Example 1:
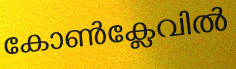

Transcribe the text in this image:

കോൺക്ലേവിൽ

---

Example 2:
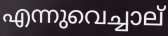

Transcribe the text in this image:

എന്നുവെച്ചാല്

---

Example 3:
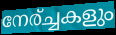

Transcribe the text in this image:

നേര്ച്ചകളും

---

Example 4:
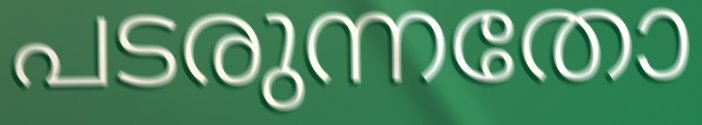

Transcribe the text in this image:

പടരുന്നതോ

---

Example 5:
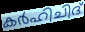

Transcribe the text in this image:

കർഹിചിദ്